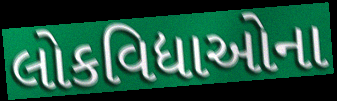
લોકવિદ્યાઓના